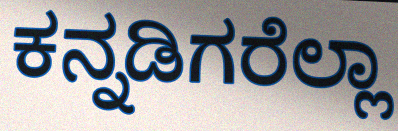
ಕನ್ನಡಿಗರೆಲ್ಲಾ